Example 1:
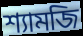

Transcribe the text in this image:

শ্যামজি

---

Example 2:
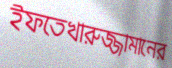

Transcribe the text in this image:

ইফতেখারুজ্জামানের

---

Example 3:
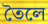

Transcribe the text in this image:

তৈলে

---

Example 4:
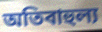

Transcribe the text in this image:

অতিবাহুল্য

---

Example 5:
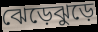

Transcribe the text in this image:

ঝেড়েঝুড়ে